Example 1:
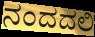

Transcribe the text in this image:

ನಂದದಲಿ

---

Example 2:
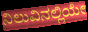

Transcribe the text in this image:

ನಿಲುವಿನಲ್ಲಿಯೇ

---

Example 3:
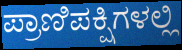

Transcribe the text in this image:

ಪ್ರಾಣಿಪಕ್ಷಿಗಳಲ್ಲಿ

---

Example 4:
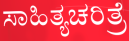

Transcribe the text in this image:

ಸಾಹಿತ್ಯಚರಿತ್ರೆ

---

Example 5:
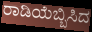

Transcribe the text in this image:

ರಾಡಿಯೆಬ್ಬಿಸಿದ